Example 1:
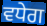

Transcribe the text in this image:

ਵਧੇਗ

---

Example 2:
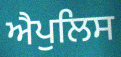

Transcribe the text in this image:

ਐਪੁਲਿਸ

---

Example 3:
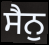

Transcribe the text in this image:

ਸੈਨੁ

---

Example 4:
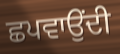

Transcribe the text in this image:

ਛਪਵਾਉਂਦੀ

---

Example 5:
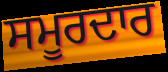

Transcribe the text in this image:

ਸਮੂਰਦਾਰ